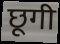
छूगी